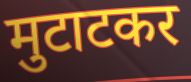
मुटाटकर